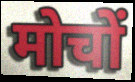
मोचों